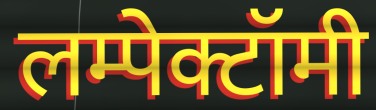
लम्पेक्टॉमी